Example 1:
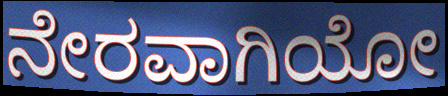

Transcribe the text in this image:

ನೇರವಾಗಿಯೋ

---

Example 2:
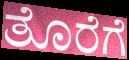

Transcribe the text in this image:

ತೊರೆಗೆ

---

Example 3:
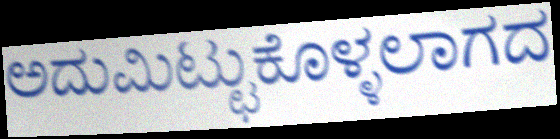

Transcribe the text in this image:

ಅದುಮಿಟ್ಟುಕೊಳ್ಳಲಾಗದ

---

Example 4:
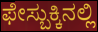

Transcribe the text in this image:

ಫೇಸ್ಬುಕ್ಕಿನಲ್ಲಿ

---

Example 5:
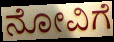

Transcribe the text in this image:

ನೋವಿಗೆ